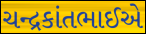
ચન્દ્રકાંતભાઈએ